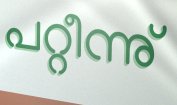
പറ്റീന്നു്